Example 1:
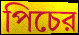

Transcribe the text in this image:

পিচের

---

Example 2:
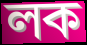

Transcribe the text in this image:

লক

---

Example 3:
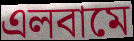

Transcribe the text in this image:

এলবামে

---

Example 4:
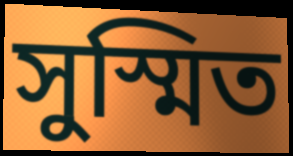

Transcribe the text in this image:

সুস্মিত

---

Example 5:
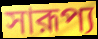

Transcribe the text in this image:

সারূপ্য